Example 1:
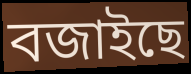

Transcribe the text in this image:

বজাইছে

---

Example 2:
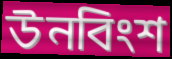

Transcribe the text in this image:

উনবিংশ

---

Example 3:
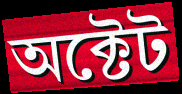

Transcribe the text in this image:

অক্টেট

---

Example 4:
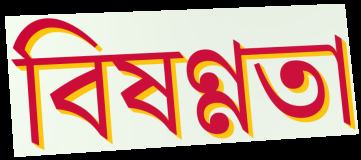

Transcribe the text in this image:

বিষণ্ণতা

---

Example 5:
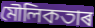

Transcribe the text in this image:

মৌলিকতাৰ